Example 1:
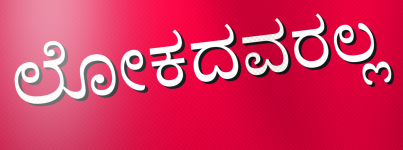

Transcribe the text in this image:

ಲೋಕದವರಲ್ಲ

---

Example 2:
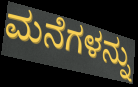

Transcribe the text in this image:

ಮನೆಗಳನ್ನು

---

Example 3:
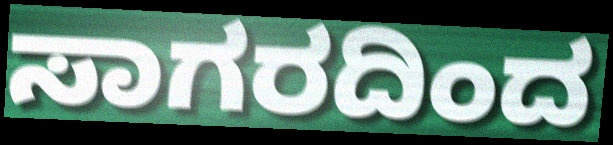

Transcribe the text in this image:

ಸಾಗರದಿಂದ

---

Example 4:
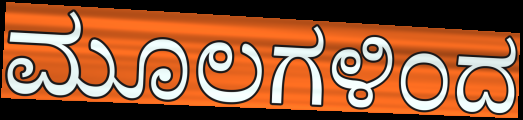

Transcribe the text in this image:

ಮೂಲಗಳಿಂದ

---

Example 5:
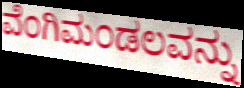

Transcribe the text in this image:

ವೆಂಗಿಮಂಡಲವನ್ನು